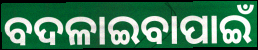
ବଦଳାଇବାପାଇଁ